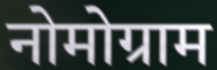
नोमोग्राम